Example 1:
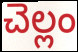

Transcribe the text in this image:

చెల్లం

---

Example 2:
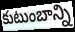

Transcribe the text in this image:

కుటుంబాన్ని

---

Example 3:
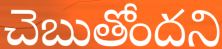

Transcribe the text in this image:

చెబుతోందని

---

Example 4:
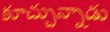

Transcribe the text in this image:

కూచ్చున్నాడు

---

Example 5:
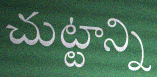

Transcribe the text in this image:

చుట్టాన్ని